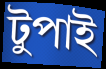
টুপাই